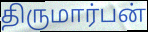
திருமார்பன்